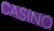
CASINO